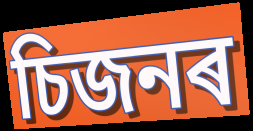
চিজনৰ